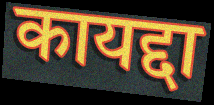
कायद्दा